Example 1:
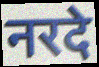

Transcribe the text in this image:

नरदे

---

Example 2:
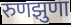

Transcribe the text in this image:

रुणझुणा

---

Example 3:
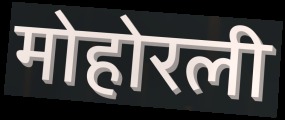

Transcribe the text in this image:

मोहोरली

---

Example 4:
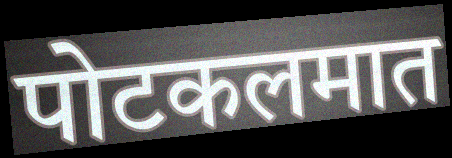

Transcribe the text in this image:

पोटकलमात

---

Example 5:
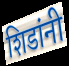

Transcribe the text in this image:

शिडांनी